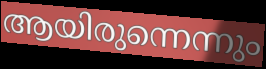
ആയിരുന്നെന്നും